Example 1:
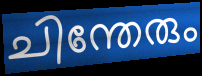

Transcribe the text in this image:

ചിന്തേരും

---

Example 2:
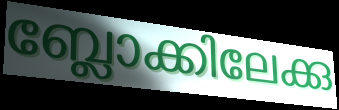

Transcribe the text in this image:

ബ്ലോക്കിലേക്കു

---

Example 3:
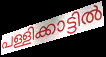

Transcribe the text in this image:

പള്ളിക്കാട്ടിൽ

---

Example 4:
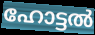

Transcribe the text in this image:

ഹോട്ടൽ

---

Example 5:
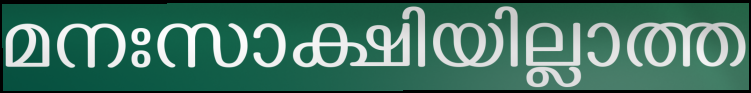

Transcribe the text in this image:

മനഃസാക്ഷിയില്ലാത്ത